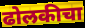
ढोलकीचा